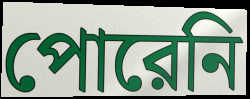
পোরেনি